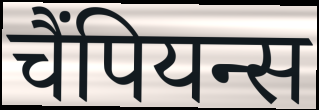
चैंपियन्स